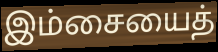
இம்சையைத்